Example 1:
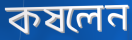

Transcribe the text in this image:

কষলেন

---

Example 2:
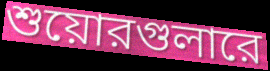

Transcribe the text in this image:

শুয়োরগুলারে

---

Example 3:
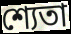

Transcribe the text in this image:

শ্যেতা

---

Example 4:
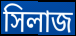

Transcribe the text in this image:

সিলাজ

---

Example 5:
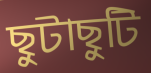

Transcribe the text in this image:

ছুটাছুটি